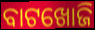
ବାଟଖୋଜି